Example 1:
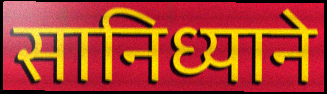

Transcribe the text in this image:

सानिध्याने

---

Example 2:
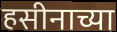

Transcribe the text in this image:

हसीनाच्या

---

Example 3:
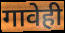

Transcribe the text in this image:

गावेही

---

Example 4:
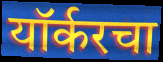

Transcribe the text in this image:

यॉर्करचा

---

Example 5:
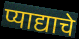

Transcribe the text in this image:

प्याद्याचे